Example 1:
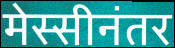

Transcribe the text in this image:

मेस्सीनंतर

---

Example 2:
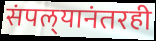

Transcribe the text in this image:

संपल्यानंतरही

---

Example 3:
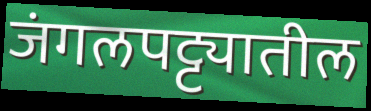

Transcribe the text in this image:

जंगलपट्ट्यातील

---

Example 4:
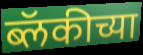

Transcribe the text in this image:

ब्लॅकीच्या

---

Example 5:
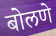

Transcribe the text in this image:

बोलणे